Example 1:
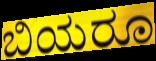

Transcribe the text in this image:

ಬಿಯರೂ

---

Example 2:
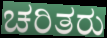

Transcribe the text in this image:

ಚರಿತರು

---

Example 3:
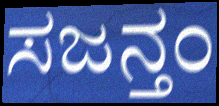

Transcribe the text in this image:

ಸಜನ್ತಂ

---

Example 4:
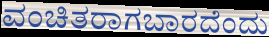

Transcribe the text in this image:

ವಂಚಿತರಾಗಬಾರದೆಂದು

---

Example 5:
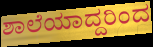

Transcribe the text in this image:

ಶಾಲೆಯಾದ್ದರಿಂದ